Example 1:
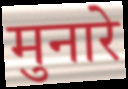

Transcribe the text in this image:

मुनारे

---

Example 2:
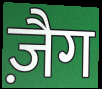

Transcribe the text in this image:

ज़ैग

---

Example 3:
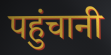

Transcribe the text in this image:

पहुंचानी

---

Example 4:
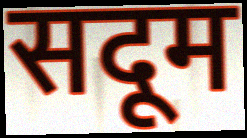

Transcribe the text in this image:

सदूम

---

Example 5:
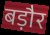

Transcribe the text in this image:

बड़ौर